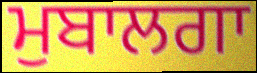
ਮੁਬਾਲਗਾ